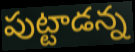
పుట్టాడన్న